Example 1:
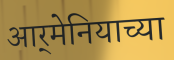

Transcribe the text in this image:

आर्मेनियाच्या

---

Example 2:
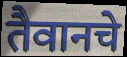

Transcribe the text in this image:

तैवानचे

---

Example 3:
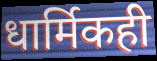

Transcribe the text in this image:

धार्मिकही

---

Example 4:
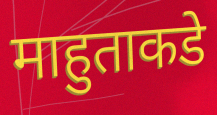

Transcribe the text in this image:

माहुताकडे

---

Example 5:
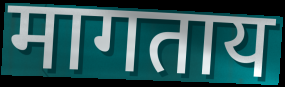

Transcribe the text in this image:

मागताय